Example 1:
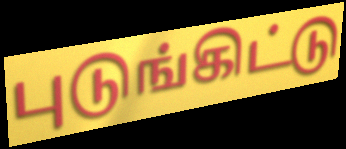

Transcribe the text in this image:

புடுங்கிட்டு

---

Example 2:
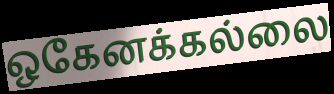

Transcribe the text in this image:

ஒகேனக்கல்லை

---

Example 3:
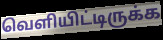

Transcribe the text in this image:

வெளியிட்டிருக்க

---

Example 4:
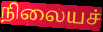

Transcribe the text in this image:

நிலையச்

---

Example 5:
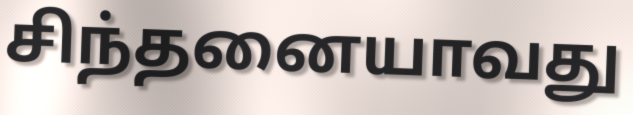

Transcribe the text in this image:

சிந்தனையாவது